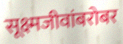
सूक्ष्मजीवांबरोबर